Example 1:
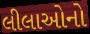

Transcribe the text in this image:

લીલાઓનો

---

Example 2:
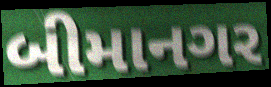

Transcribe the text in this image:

બીમાનગર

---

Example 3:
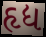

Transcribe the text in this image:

હૃદ્ય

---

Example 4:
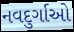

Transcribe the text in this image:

નવદુર્ગાઓ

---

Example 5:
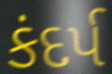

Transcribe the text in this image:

કંદર્પ